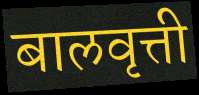
बालवृत्ती